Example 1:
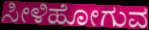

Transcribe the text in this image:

ಸೀಳಿಹೋಗುವ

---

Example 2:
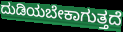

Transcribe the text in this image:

ದುಡಿಯಬೇಕಾಗುತ್ತದೆ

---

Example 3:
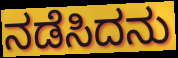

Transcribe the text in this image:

ನಡೆಸಿದನು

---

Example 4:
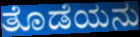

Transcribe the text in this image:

ತೊಡೆಯನು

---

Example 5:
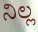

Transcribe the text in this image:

ನಿಲ್ಲ